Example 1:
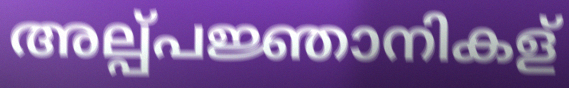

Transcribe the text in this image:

അല്പ്പജ്ഞാനികള്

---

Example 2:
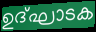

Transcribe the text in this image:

ഉദ്ഘാടക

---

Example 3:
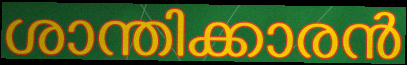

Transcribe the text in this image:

ശാന്തിക്കാരൻ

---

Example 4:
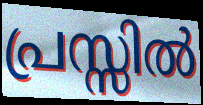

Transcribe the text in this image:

പ്രസ്സിൽ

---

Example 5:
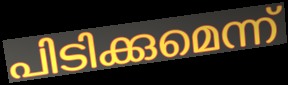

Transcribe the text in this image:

പിടിക്കുമെന്ന്